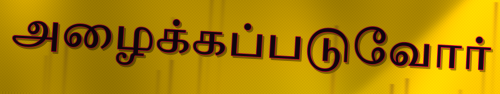
அழைக்கப்படுவோர்